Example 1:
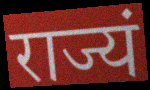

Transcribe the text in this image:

राज्यं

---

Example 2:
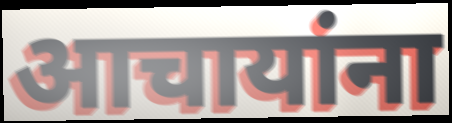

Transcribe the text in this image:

आचायांना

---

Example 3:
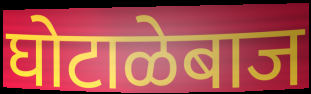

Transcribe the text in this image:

घोटाळेबाज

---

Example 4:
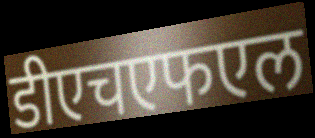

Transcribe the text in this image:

डीएचएफएल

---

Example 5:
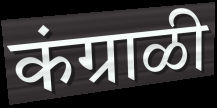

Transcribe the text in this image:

कंग्राळी